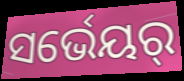
ସର୍ଭେୟର୍